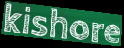
kishore